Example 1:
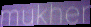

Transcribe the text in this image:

mukher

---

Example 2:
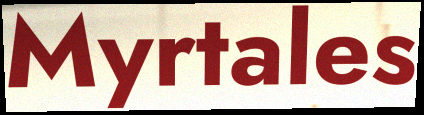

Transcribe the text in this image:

Myrtales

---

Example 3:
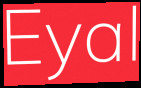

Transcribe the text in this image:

Eyal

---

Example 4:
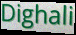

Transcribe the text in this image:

Dighali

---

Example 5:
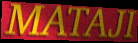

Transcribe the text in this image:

MATAJI